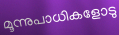
മൂന്നുപാധികളോടു